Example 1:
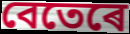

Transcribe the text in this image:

বেতেৰে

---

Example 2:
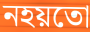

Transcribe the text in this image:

নহয়তো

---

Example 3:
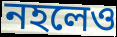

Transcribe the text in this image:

নহলেও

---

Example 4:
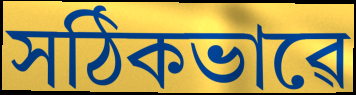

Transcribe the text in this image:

সঠিকভাৱে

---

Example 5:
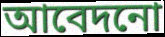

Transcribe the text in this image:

আবেদনো